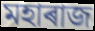
মহাৰাজ